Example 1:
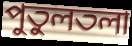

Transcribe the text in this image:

পুতুলতলা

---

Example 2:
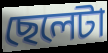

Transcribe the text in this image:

ছেলেটা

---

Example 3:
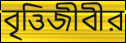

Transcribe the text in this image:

বৃত্তিজীবীর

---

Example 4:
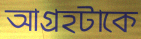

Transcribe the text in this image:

আগ্রহটাকে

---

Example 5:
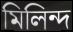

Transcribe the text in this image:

মিলিন্দ